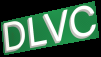
DLVC